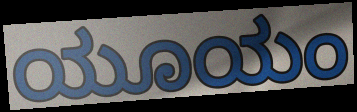
ಯೂಯಂ